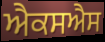
ਐਕਸਐਸ